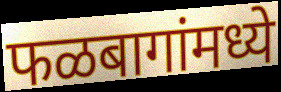
फळबागांमध्ये